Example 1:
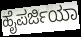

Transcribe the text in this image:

ಹೈಪರ್ಜಿಯಾ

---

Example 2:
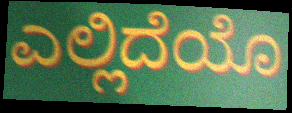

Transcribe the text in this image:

ಎಲ್ಲಿದೆಯೊ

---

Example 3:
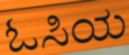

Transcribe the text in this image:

ಓಸಿಯ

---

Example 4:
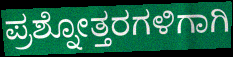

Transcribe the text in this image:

ಪ್ರಶ್ನೋತ್ತರಗಳಿಗಾಗಿ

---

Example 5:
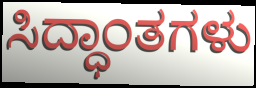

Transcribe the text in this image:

ಸಿದ್ಧಾಂತಗಳು